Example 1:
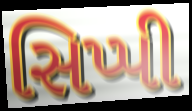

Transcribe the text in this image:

સિપ્પી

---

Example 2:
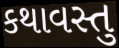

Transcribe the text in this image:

કથાવસ્તુ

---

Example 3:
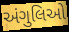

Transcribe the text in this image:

અંગુલિઓ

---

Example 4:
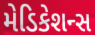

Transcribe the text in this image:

મેડિકેશન્સ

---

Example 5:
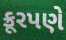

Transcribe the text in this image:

ક્રૂરપણે